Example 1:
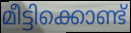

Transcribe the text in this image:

മീട്ടിക്കൊണ്ട്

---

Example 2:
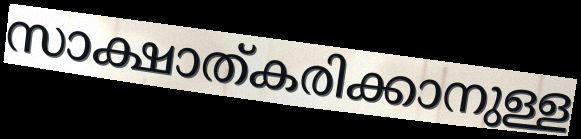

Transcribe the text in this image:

സാക്ഷാത്കരിക്കാനുള്ള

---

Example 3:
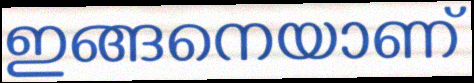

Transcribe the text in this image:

ഇങ്ങനെയാണ്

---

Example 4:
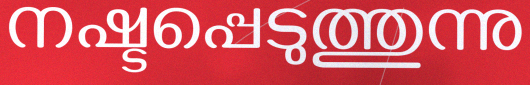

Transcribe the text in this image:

നഷ്ടപ്പെടുത്തുന്നു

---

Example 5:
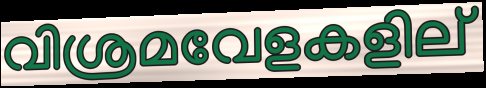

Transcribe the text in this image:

വിശ്രമവേളകളില്